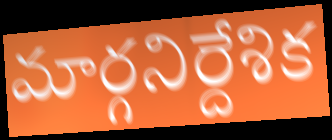
మార్గనిర్దేశిక